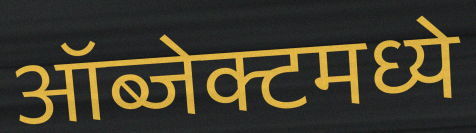
ऑब्जेक्टमध्ये